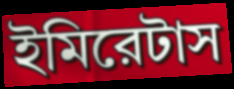
ইমিরেটাস